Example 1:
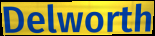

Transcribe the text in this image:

Delworth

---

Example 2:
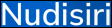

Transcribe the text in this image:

Nudisiri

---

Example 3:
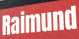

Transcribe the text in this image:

Raimund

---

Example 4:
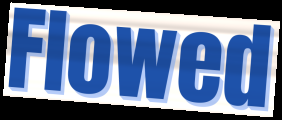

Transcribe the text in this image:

Flowed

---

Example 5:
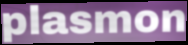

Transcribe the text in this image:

plasmon